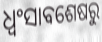
ଧ୍ୱଂସାବଶେଷରୁ